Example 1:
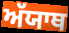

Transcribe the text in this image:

ਅੱਯਾਥ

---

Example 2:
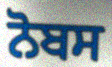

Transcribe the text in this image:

ਨੋਬਸ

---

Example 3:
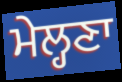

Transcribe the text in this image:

ਮੇਲ੍ਹਣਾ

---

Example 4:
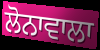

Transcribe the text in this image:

ਲੋਨਾਵਾਲਾ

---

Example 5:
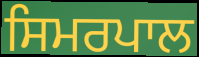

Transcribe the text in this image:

ਸਿਮਰਪਾਲ